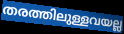
തരത്തിലുള്ളവയല്ല